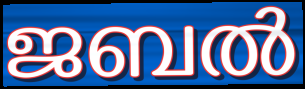
ജബൽ